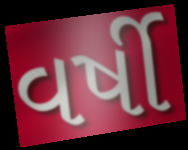
વર્ષી